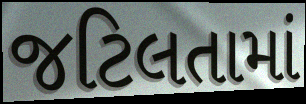
જટિલતામાં